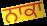
ਨਾਕਾ